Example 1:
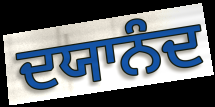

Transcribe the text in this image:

ਦਯਾਨੰਦ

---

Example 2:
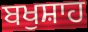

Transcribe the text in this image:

ਬਖੁਸ਼ਾਹ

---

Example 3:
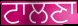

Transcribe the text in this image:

ਟਾਲਣਾ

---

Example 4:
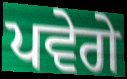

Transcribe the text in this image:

ਪਵੇਗੇ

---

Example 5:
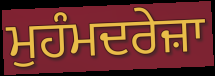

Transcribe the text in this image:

ਮੁਹੰਮਦਰੇਜ਼ਾ